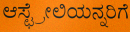
ಆಸ್ಟ್ರೇಲಿಯನ್ನರಿಗೆ